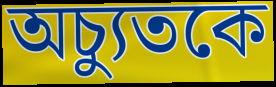
অচ্যুতকে